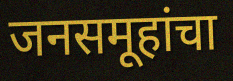
जनसमूहांचा